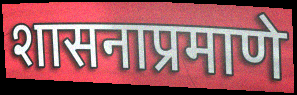
शासनाप्रमाणे